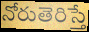
నోరుతెరిస్తే